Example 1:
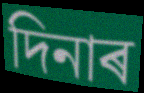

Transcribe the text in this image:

দিনাৰ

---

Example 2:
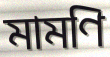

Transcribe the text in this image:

মামণি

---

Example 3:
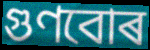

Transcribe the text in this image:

গুণবোৰ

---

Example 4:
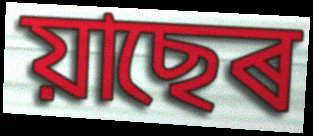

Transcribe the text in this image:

য়াছেৰ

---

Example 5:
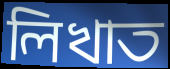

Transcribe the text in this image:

লিখাত